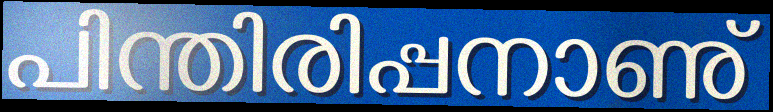
പിന്തിരിപ്പനാണു്